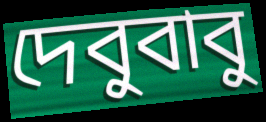
দেবুবাবু